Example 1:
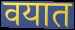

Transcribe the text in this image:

वयात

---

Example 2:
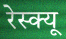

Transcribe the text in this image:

रेस्क्यू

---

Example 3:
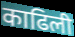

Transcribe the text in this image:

काढिली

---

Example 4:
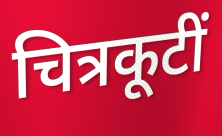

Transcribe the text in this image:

चित्रकूटीं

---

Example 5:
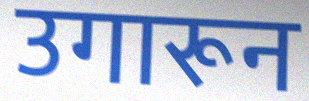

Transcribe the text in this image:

उगारून